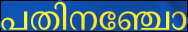
പതിനഞ്ചോ